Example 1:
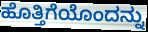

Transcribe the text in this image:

ಹೊತ್ತಿಗೆಯೊಂದನ್ನು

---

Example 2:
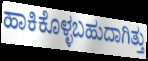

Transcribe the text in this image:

ಹಾಕಿಕೊಳ್ಳಬಹುದಾಗಿತ್ತು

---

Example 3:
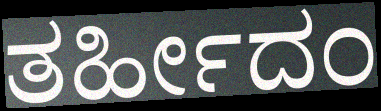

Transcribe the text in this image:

ತರ್ಹೀದಂ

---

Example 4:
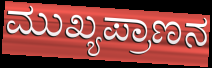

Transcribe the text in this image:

ಮುಖ್ಯಪ್ರಾಣನ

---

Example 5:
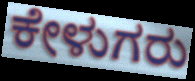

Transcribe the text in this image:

ಕೇಳುಗರು